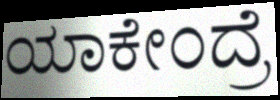
ಯಾಕೇಂದ್ರೆ